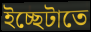
ইচ্ছেটাতে